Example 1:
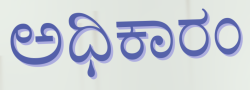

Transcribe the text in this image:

ಅಧಿಕಾರಂ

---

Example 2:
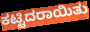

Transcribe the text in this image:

ಕಟ್ಟಿದರಾಯಿತು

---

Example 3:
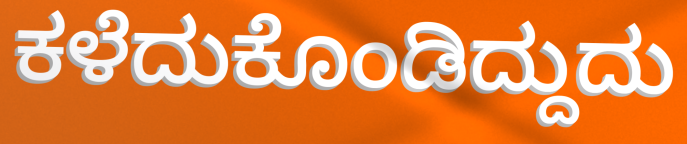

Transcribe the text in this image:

ಕಳೆದುಕೊಂಡಿದ್ದುದು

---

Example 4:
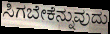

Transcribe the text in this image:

ಸಿಗಬೇಕೆನ್ನುವುದು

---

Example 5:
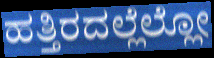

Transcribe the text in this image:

ಹತ್ತಿರದಲ್ಲೆಲ್ಲೋ